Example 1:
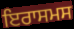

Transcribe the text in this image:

ਇਰਾਸਮਸ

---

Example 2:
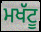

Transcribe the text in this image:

ਮਖੱਟੂ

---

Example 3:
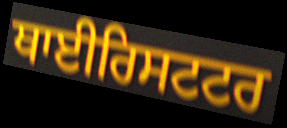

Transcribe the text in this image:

ਥਾਈਰਿਸਟਟਰ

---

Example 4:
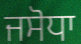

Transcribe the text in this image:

ਜਸੋਧਾ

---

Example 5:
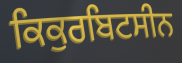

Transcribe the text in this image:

ਕਿਕੁਰਬਿਟਸੀਨ